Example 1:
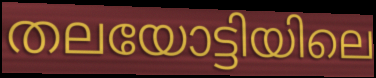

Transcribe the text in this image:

തലയോട്ടിയിലെ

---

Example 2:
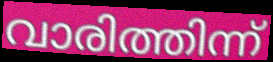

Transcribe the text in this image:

വാരിത്തിന്ന്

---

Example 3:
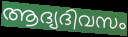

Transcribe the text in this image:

ആദ്യദിവസം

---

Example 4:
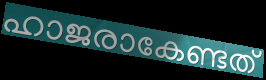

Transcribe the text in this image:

ഹാജരാകേണ്ടത്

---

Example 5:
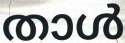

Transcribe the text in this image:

താൾ